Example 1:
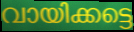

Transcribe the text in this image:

വായിക്കട്ടെ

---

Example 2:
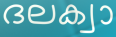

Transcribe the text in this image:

ദലക്വാ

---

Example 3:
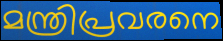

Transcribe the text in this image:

മന്ത്രിപ്രവരനെ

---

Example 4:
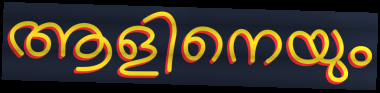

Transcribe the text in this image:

ആളിനെയും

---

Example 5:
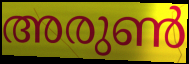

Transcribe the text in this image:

അരുൺ